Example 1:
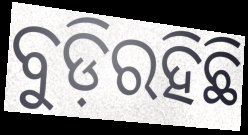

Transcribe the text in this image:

ବୁଡ଼ିରହିଛି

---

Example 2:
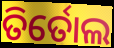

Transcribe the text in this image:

ତିର୍ତୋଲ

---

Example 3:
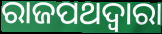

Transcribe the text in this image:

ରାଜପଥଦ୍ୱାରା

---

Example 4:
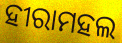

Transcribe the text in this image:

ହୀରାମହଲ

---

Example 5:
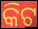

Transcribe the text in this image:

କିଟ